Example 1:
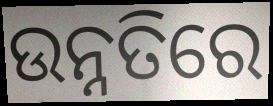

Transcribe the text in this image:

ଉନ୍ନତିରେ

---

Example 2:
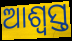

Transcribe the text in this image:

ଆଶ୍ୱସ୍ତ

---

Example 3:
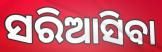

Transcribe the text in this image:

ସରିଆସିବା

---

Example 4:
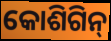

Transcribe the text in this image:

କୋଶିଗିନ୍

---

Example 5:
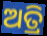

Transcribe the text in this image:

ଅତ୍ରି